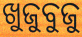
ଖୁଜୁବୁଜୁ